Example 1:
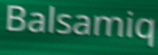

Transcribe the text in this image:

Balsamiq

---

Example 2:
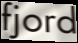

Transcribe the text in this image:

fjord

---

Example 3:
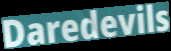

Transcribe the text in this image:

Daredevils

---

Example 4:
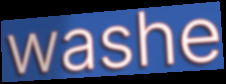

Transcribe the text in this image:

washe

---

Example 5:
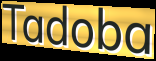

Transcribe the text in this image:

Tadoba